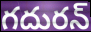
గదురన్